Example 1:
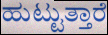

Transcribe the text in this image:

ಹುಟ್ಟುತ್ತಾರೆ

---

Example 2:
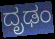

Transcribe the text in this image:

ದೃಢಂ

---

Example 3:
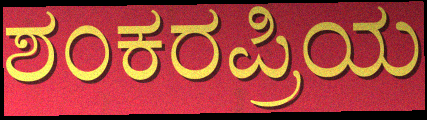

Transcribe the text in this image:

ಶಂಕರಪ್ರಿಯ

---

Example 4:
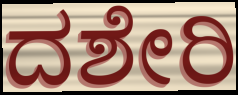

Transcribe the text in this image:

ದಶೇರಿ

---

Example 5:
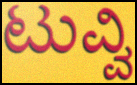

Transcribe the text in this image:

ಟುವ್ವಿ